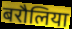
बरौलिया